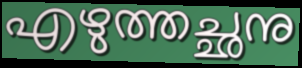
എഴുത്തച്ഛനു